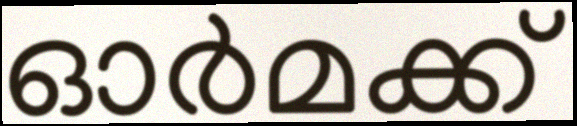
ഓർമക്ക്